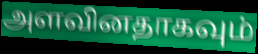
அளவினதாகவும்